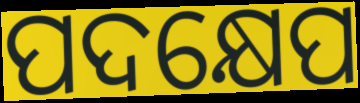
ପଦକ୍ଷେପ